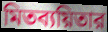
মিতব্যয়িতার